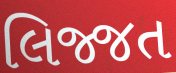
લિજ્જત